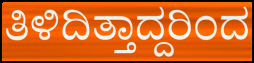
ತಿಳಿದಿತ್ತಾದ್ದರಿಂದ